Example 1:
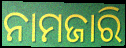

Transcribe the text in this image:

ନାମଜାରି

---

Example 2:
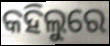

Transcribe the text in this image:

କହିଲୁରେ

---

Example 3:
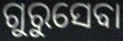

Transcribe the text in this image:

ଗୁରୁସେବା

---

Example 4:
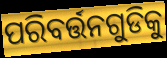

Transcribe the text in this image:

ପରିବର୍ତ୍ତନଗୁଡିକୁ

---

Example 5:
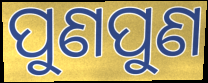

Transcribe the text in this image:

ପୁଣପୁଣ